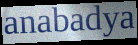
anabadya